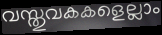
വസ്തുവകകളെല്ലാം